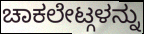
ಚಾಕಲೇಟ್ಗಳನ್ನು